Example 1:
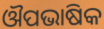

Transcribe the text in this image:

ଔପଭାଷିକ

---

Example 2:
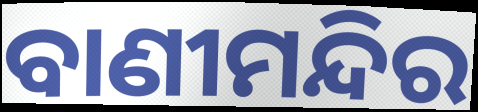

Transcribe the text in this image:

ବାଣୀମନ୍ଦିର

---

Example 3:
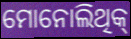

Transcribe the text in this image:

ମୋନୋଲିଥିକ୍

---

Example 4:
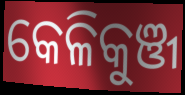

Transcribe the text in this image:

କେଳିକୁଞ୍ଜ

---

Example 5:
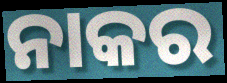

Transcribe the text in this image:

ନାକର